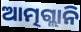
ଆତ୍ମଗ୍ଲାନି